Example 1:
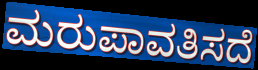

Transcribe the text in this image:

ಮರುಪಾವತಿಸದೆ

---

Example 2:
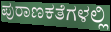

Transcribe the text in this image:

ಪುರಾಣಕತೆಗಳಲ್ಲಿ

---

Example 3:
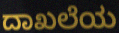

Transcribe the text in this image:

ದಾಖಲೆಯ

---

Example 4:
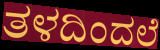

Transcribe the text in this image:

ತಳದಿಂದಲೆ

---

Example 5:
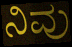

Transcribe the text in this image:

ನಿವು